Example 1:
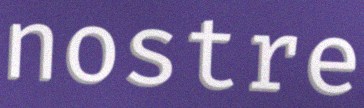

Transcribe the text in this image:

nostre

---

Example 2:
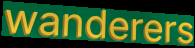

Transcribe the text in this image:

wanderers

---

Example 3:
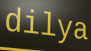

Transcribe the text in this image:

dilya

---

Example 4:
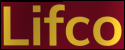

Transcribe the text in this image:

Lifco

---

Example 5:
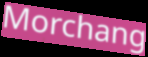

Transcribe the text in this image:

Morchang